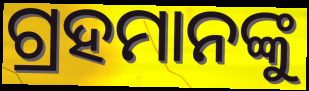
ଗ୍ରହମାନଙ୍କୁ